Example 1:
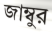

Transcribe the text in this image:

জাম্বুর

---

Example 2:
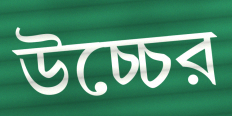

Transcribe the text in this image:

উচ্চের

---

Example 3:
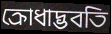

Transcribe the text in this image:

ক্রোধাদ্ভবতি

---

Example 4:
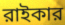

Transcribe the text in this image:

রাইকার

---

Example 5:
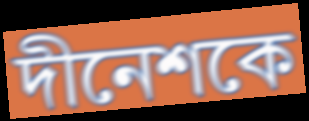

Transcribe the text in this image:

দীনেশকে